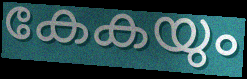
കേകയും